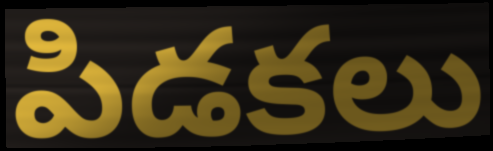
పిడకలు